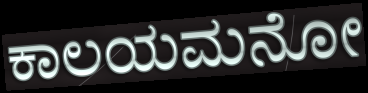
ಕಾಲಯಮನೋ